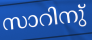
സാറിനു്